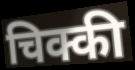
चिक्की